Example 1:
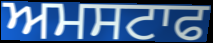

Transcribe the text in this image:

ਅਮਸਟਾਫ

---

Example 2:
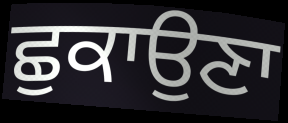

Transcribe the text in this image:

ਛੁਕਾਉਣਾ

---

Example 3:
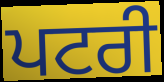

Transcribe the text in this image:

ਪਟਰੀ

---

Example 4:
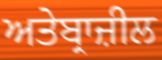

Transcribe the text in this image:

ਅਤੇਬ੍ਰਾਜ਼ੀਲ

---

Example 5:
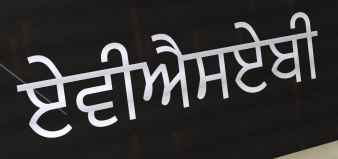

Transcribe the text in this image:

ਏਵੀਐਸਏਬੀ